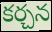
కర్చన